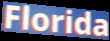
Florida